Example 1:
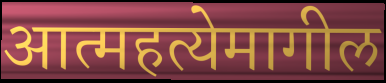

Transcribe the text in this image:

आत्महत्येमागील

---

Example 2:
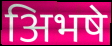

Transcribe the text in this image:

अिभषे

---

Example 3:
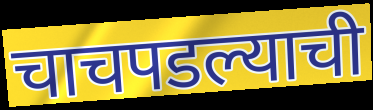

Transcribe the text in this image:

चाचपडल्याची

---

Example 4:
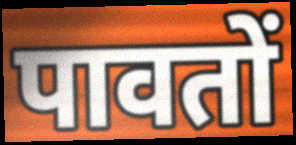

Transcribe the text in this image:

पावतों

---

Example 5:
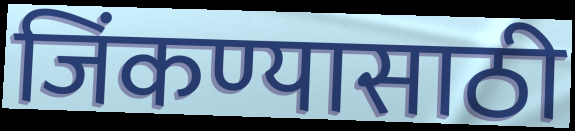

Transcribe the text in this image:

जिंकण्यासाठी